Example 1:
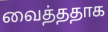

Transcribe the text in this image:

வைத்ததாக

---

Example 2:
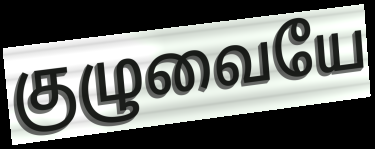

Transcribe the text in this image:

குழுவையே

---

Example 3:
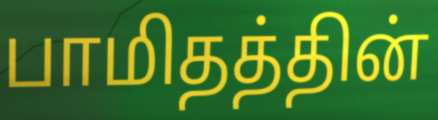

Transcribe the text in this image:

பாமிதத்தின்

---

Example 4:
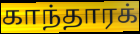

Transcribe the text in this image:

காந்தாரக்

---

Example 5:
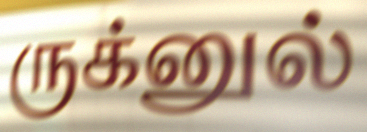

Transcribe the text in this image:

ருக்னுல்